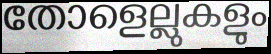
തോളെല്ലുകളും